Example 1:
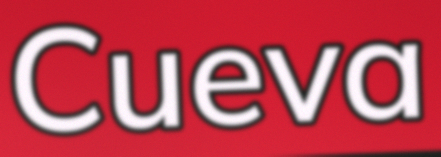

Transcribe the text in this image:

Cueva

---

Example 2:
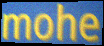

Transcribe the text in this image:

mohe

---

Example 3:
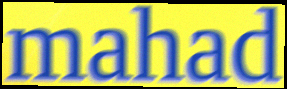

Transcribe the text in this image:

mahad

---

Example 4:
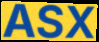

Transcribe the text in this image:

ASX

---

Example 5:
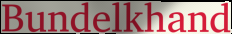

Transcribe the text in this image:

Bundelkhand